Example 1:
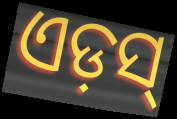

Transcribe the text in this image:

ଏଡ଼ସ୍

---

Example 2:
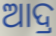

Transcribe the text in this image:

ଆଦ୍ର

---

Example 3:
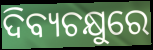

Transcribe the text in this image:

ଦିବ୍ୟଚକ୍ଷୁରେ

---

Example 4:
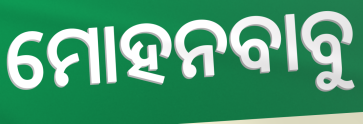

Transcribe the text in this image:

ମୋହନବାବୁ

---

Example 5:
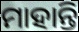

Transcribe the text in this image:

ମାହାନ୍ତି